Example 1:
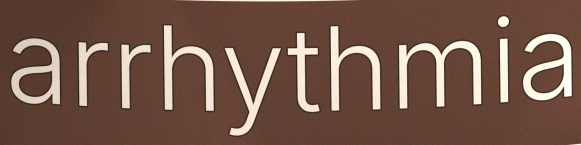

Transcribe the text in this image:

arrhythmia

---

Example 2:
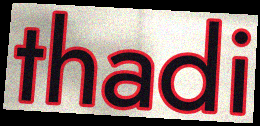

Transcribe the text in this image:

thadi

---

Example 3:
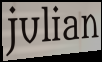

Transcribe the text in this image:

julian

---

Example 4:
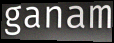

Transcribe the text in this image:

ganam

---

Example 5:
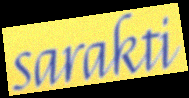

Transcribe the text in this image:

sarakti